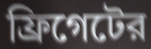
ফ্রিগেটের